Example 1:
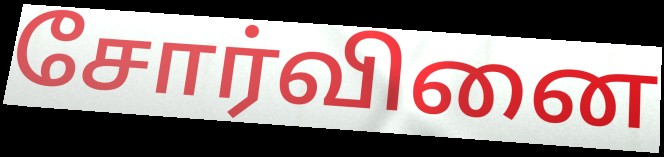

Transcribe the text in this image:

சோர்வினை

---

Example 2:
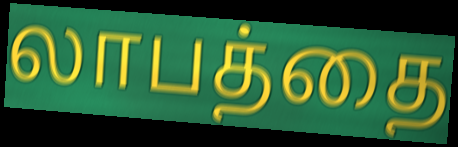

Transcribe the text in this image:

லாபத்தை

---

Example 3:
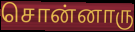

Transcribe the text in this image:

சொன்னாரு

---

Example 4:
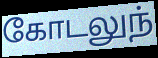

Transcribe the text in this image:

கோடலுந்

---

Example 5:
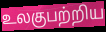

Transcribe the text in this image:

உலகுபற்றிய